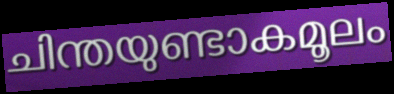
ചിന്തയുണ്ടാകമൂലം